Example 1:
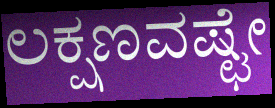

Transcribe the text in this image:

ಲಕ್ಷಣವಷ್ಟೇ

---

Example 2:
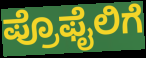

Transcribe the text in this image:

ಪ್ರೊಫೈಲಿಗೆ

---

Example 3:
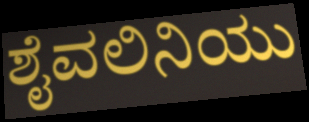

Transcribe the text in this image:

ಶೈವಲಿನಿಯು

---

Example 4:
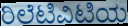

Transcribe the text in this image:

ರಿಲೆಟಿವಿಟಿಯ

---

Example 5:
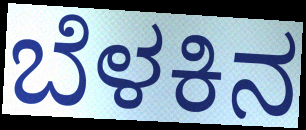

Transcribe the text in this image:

ಬೆಳಕಿನ